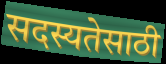
सदस्यतेसाठी